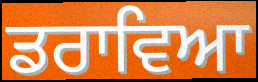
ਡਰਾਵਿਆ